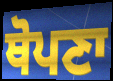
ਥੋਪਣਾ